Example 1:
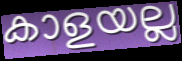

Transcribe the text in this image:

കാളയല്ല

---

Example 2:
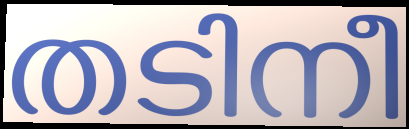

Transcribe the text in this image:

തടിനീ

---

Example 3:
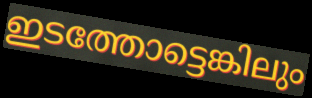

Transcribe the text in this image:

ഇടത്തോട്ടെങ്കിലും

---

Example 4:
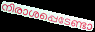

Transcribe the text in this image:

നിരാശപ്പെടേണ്ടാ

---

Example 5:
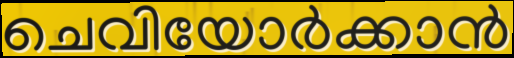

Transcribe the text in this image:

ചെവിയോർക്കാൻ